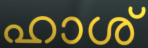
ഹാശ്